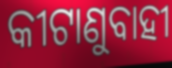
କୀଟାଣୁବାହୀ